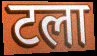
टला